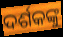
ଦର୍ଶକଙ୍କୁ